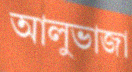
আলুভাজা